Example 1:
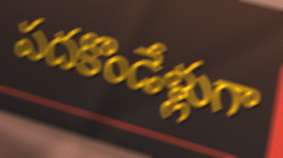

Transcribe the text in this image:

పదకొండేళ్లుగా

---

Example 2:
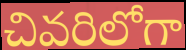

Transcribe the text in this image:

చివరిలోగా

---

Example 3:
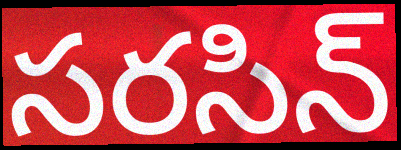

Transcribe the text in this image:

సరసిన్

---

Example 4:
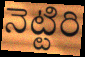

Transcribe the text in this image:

నెట్టిరి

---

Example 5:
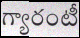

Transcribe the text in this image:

గ్యారంటీ